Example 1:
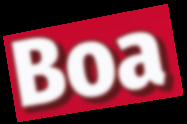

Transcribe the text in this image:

Boa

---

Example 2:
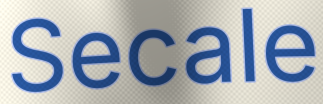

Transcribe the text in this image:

Secale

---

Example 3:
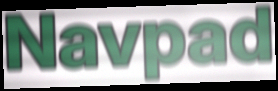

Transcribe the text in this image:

Navpad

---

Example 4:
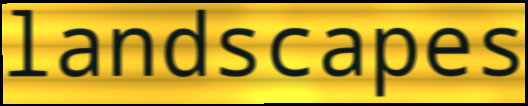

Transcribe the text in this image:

landscapes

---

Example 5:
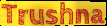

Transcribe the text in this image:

Trushna